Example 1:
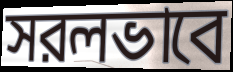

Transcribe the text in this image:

সরলভাবে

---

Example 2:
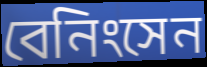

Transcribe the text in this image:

বেনিংসেন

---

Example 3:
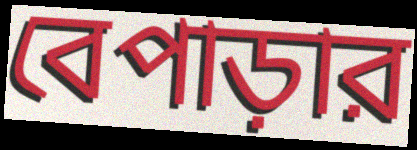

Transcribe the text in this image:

বেপাড়ার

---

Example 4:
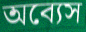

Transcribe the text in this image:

অব্যেস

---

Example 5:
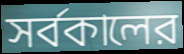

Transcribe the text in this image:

সর্বকালের